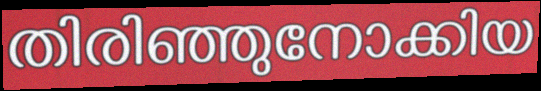
തിരിഞ്ഞുനോക്കിയ